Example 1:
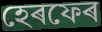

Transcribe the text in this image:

হেৰফেৰ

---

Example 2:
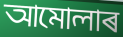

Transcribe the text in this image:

আমোলাৰ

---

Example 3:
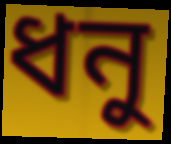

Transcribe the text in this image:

ধনু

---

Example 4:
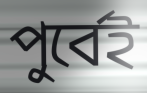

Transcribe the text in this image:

পুৰ্বেই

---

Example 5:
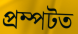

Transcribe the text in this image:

প্ৰম্পটত